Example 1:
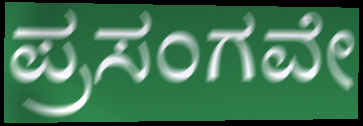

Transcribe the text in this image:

ಪ್ರಸಂಗವೇ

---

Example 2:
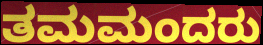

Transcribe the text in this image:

ತಮಮಂದರು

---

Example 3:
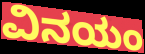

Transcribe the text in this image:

ವಿನಯಂ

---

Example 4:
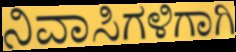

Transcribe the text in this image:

ನಿವಾಸಿಗಳಿಗಾಗಿ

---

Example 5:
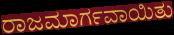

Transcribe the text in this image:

ರಾಜಮಾರ್ಗವಾಯಿತು